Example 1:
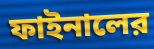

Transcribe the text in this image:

ফাইনালের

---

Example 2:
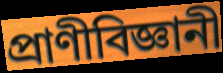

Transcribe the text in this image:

প্রাণীবিজ্ঞানী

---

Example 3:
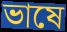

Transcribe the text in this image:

ভাষে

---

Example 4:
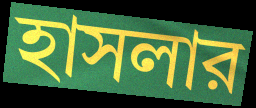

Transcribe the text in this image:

হাসলার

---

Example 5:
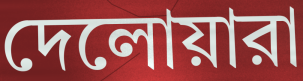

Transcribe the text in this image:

দেলোয়ারা